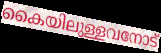
കൈയിലുള്ളവനോട്